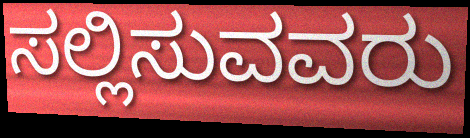
ಸಲ್ಲಿಸುವವರು